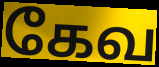
கேவ